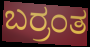
ಬರ್ರಂತ